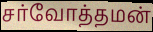
சர்வோத்தமன்